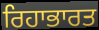
ਰਿਹਾਭਾਰਤ